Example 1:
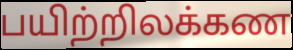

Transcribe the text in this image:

பயிற்றிலக்கண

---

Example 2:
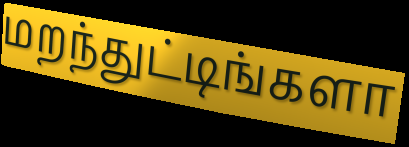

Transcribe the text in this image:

மறந்துட்டிங்களா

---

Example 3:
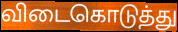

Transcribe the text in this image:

விடைகொடுத்து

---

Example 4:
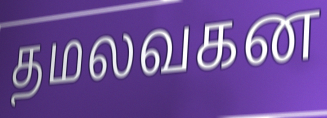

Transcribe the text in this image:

தமலவகன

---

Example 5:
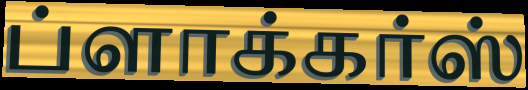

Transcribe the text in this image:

ப்ளாக்கர்ஸ்